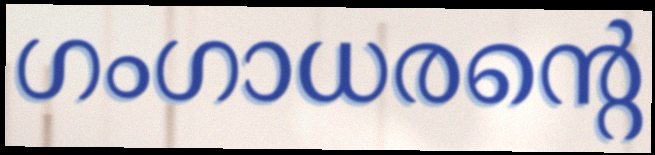
ഗംഗാധരന്റെ